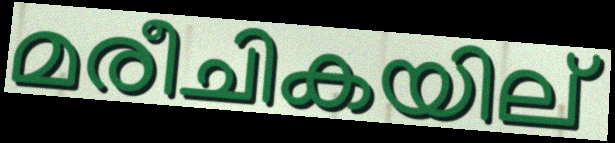
മരീചികയില്